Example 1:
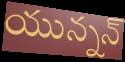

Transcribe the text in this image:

యున్నన్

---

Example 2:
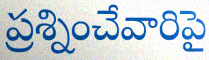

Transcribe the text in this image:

ప్రశ్నించేవారిపై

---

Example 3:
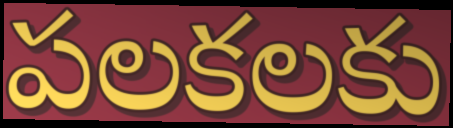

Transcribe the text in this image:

పలకలకు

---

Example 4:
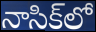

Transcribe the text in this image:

నాసిక్‌లో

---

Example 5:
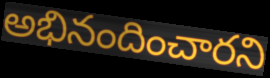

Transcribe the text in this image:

అభినందించారని